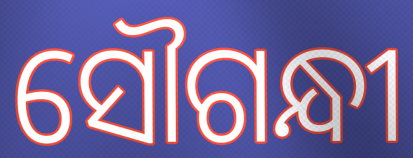
ସୌଗନ୍ଧୀ